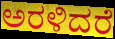
ಅರಳಿದರೆ